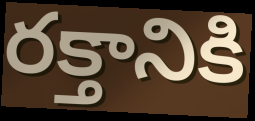
రక్తానికి